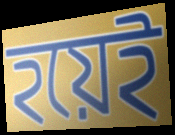
হয়েই